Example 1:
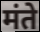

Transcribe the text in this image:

मंते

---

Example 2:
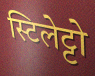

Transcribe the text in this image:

स्टिलेट्टो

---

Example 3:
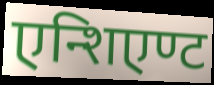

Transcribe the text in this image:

एन्शिएण्ट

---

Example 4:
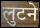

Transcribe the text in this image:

लुटने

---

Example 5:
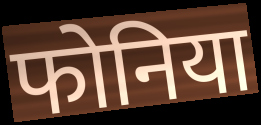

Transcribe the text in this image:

फोनिया